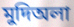
মুদিঅলা